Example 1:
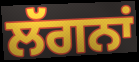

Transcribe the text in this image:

ਲੱਗਨਾਂ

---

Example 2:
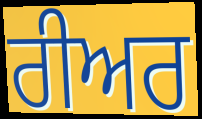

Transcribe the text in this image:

ਰੀਅਰ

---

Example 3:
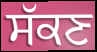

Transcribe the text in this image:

ਸੱਕਣ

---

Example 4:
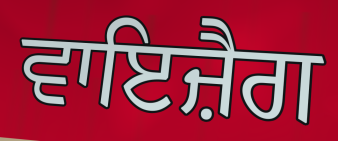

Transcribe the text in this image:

ਵਾਇਜ਼ੈਗ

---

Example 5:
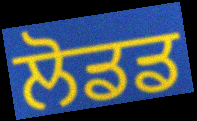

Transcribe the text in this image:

ਲੋਡਡ